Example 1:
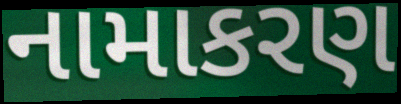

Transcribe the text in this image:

નામાકરણ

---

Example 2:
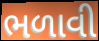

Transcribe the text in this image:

ભળાવી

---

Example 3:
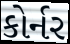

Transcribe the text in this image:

કોર્નર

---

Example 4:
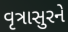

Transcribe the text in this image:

વૃત્રાસુરને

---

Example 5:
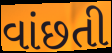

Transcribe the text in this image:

વાંછતી